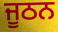
ਜੂਠਨ